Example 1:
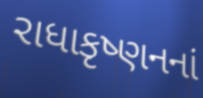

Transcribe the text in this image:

રાધાકૃષ્ણનનાં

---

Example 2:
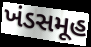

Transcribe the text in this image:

ખંડસમૂહ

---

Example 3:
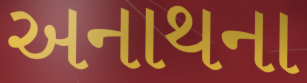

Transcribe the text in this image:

અનાથના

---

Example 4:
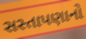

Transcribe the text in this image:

સસ્તાપણાનો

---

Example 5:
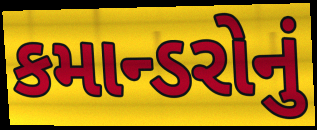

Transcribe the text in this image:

કમાન્ડરોનું